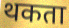
थकता